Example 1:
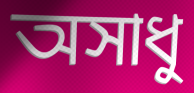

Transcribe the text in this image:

অসাধু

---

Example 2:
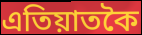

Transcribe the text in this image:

এতিয়াতকৈ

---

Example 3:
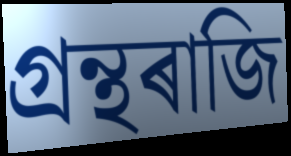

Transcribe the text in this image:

গ্ৰন্থৰাজি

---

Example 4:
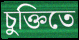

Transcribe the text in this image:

চুক্তিতে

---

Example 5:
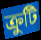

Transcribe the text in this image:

ক্ৰুটি